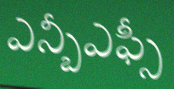
ఎన్బీఎఫ్సీ